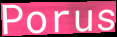
Porus